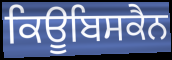
ਕਿਊਬਿਸਕੈਨ